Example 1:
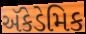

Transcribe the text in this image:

ઍકેડેમિક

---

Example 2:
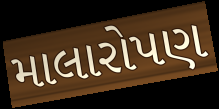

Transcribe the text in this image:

માલારોપણ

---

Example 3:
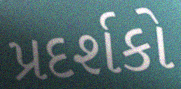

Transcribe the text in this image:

પ્રદર્શકો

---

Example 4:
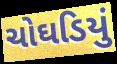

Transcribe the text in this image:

ચોઘડિયું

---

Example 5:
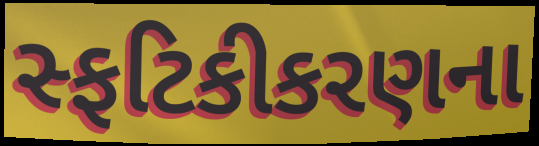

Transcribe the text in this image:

સ્ફટિકીકરણના